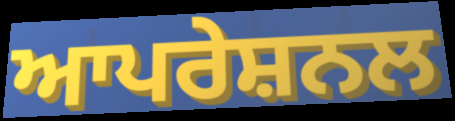
ਆਪਰੇਸ਼ਨਲ